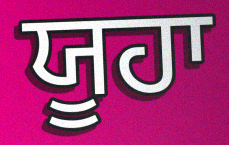
ਯੂਹਾ